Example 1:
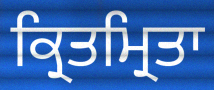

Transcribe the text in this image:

ਕ੍ਰਿਤਮ੍ਰਿਤਾ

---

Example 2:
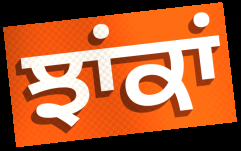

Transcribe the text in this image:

ਝਾਂਕਾਂ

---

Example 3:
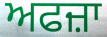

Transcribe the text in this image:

ਅਫਜ਼ਾ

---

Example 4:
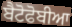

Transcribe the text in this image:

ਬੈਟੋਫੋਬੀਆ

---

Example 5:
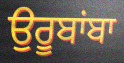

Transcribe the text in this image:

ਉਰੂਬਾਂਬਾ